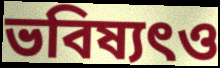
ভবিষ্যৎও